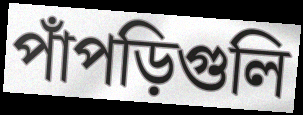
পাঁপড়িগুলি